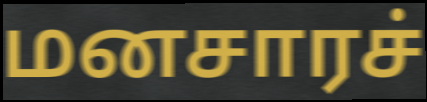
மனசாரச்